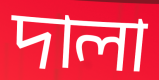
দালা